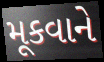
મૂકવાને